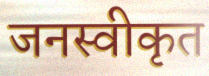
जनस्वीकृत